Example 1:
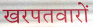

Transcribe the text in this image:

खरपतवारों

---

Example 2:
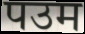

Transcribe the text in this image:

पउम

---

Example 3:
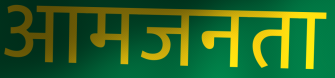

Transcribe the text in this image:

आमजनता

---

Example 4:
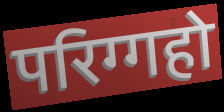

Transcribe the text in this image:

परिग्गहो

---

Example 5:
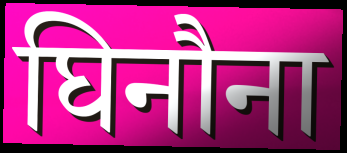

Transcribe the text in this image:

घिनौना